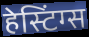
हेस्टिंग्स